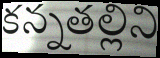
కన్నతల్లిని